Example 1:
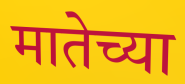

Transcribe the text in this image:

मातेच्या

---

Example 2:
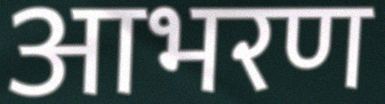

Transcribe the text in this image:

आभरण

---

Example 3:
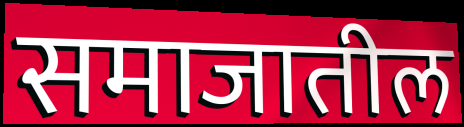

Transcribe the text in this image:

समाजातील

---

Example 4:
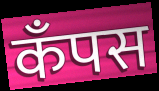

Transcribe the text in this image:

कॅंपस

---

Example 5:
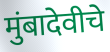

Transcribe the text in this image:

मुंबादेवीचे